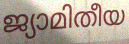
ജ്യാമിതീയ